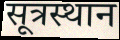
सूत्रस्थान